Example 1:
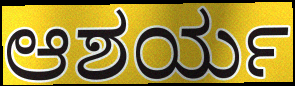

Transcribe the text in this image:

ಆಶರ್ಯ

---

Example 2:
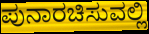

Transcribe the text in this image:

ಪುನಾರಚಿಸುವಲ್ಲಿ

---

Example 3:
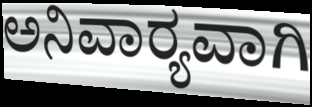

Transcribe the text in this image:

ಅನಿವಾರ‍್ಯವಾಗಿ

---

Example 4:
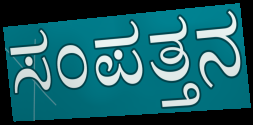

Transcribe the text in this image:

ಸಂಪತ್ತನ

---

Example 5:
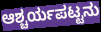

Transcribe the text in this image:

ಆಶ್ಚರ್ಯಪಟ್ಟನು